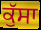
ਕੁੱਸਾ